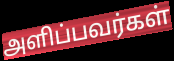
அளிப்பவர்கள்